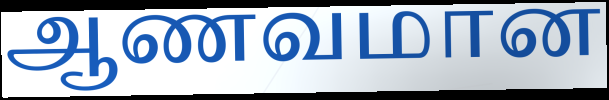
ஆணவமான